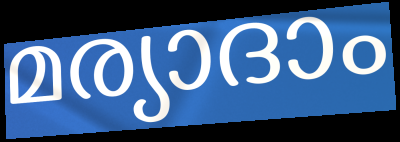
മര്യാദാം